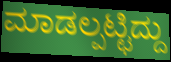
ಮಾಡಲ್ಪಟ್ಟಿದ್ದು